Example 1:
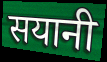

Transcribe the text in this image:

सयानी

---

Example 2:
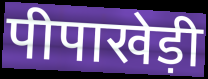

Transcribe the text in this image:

पीपाखेड़ी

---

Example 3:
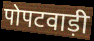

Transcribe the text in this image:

पोपटवाड़ी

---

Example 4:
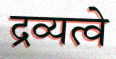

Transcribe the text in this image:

द्रव्यत्वे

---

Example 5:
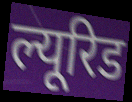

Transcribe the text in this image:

ल्यूरिड